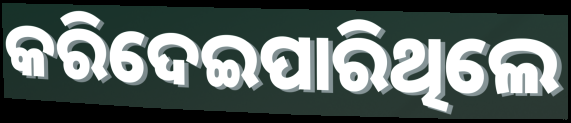
କରିଦେଇପାରିଥିଲେ